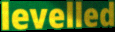
levelled